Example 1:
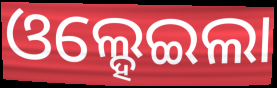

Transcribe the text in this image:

ଓଲ୍ହେଇଲା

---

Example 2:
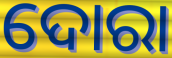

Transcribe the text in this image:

ଦୋରା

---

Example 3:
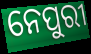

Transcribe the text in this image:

ନେପୁରୀ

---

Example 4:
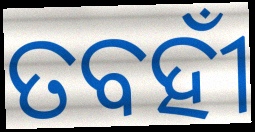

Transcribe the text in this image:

ତବହୀଁ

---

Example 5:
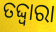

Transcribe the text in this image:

ତଦ୍ଦ୍ଵାରା